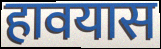
हावयास